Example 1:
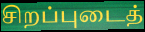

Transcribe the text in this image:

சிறப்புடைத்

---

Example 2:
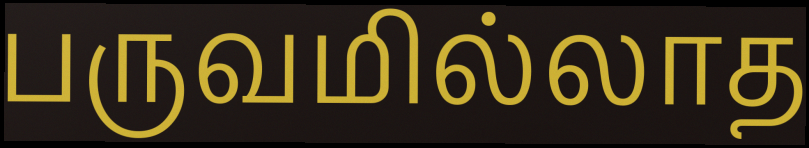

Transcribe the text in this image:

பருவமில்லாத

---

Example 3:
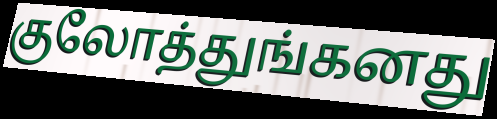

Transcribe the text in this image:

குலோத்துங்கனது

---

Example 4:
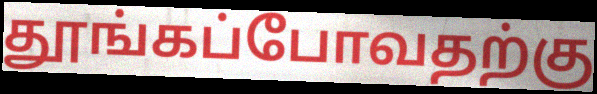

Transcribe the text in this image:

தூங்கப்போவதற்கு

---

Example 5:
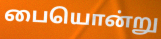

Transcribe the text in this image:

பையொன்று